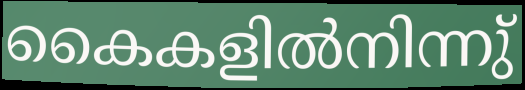
കൈകളിൽനിന്നു്